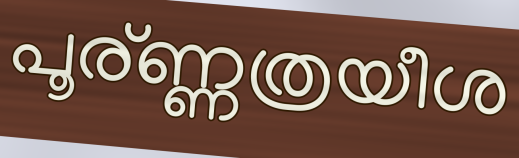
പൂര്ണ്ണത്രയീശ